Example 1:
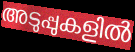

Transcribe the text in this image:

അടുപ്പുകളിൽ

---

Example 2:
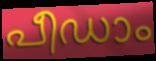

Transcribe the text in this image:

പീഡാം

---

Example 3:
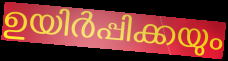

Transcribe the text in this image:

ഉയിർപ്പിക്കയും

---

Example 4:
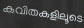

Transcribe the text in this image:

കവിതകളിലൂടെ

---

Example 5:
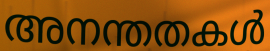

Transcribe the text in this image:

അനന്തതകൾ